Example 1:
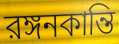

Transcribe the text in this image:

রঙ্গনকান্তি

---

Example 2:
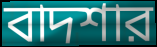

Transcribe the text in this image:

বাদশার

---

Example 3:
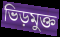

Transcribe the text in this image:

ভিড়মুক্ত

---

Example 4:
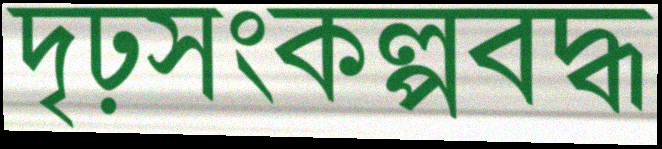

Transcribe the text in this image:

দৃঢ়সংকল্পবদ্ধ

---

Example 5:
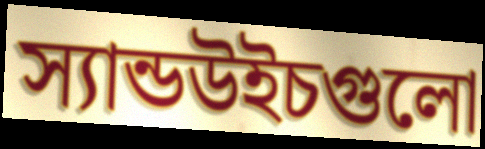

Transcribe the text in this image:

স্যান্ডউইচগুলো